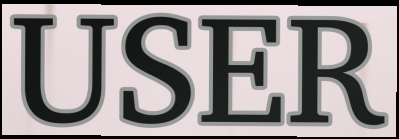
USER